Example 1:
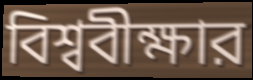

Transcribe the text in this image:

বিশ্ববীক্ষার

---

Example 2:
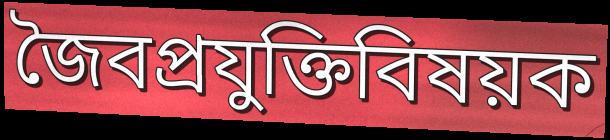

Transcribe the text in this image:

জৈবপ্রযুক্তিবিষয়ক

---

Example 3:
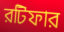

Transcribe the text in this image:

রটিফার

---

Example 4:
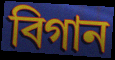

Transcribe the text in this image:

বিগান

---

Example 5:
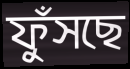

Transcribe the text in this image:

ফুঁসছে